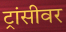
ट्रांसीवर